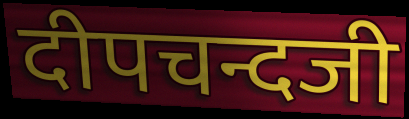
दीपचन्दजी